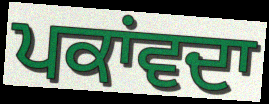
ਪਕਾਂਵਦਾ